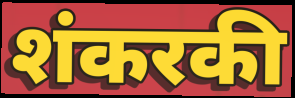
शंकरकी